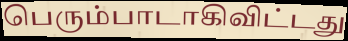
பெரும்பாடாகிவிட்டது